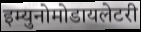
इम्युनोमोडायलेटरी